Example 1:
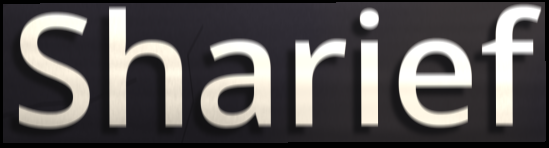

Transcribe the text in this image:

Sharief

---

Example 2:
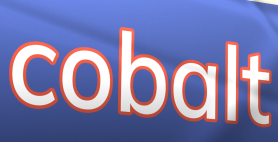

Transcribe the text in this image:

cobalt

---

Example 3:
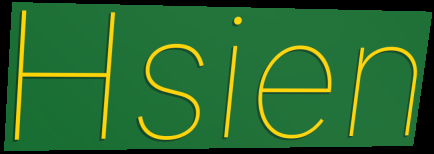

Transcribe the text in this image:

Hsien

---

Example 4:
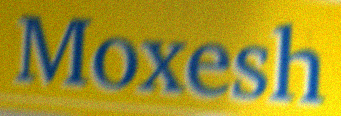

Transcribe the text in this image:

Moxesh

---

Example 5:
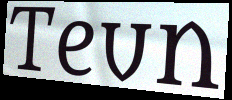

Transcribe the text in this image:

Teun